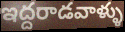
ఇద్దరాడవాళ్ళు